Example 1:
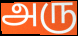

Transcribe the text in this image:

அரு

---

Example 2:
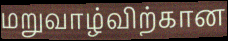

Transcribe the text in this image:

மறுவாழ்விற்கான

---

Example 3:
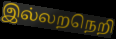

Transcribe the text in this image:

இல்லறநெறி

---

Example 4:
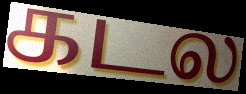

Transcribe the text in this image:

கடல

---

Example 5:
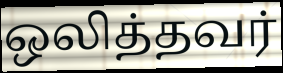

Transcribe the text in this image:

ஒலித்தவர்